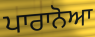
ਪਾਰਾਨੋਆ